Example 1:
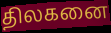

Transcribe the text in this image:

திலகனை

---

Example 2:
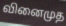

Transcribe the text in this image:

வினைமுத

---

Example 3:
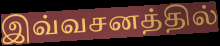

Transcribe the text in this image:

இவ்வசனத்தில்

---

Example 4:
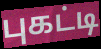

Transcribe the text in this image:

புகட்டி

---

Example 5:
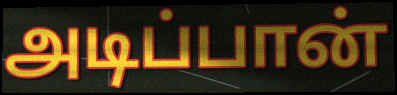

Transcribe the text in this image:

அடிப்பான்